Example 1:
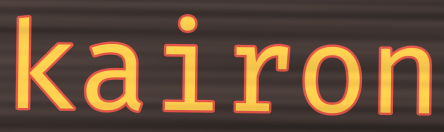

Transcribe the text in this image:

kairon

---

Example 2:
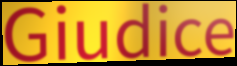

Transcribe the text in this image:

Giudice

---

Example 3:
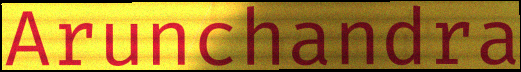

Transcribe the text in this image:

Arunchandra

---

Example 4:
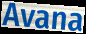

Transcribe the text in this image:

Avana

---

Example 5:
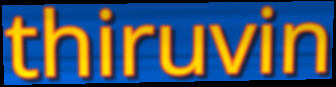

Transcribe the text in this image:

thiruvin